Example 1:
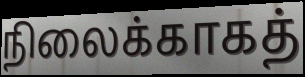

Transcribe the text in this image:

நிலைக்காகத்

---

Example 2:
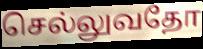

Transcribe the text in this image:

செல்லுவதோ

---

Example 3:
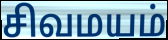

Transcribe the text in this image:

சிவமயம்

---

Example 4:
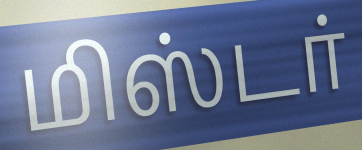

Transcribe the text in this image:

மிஸ்டர்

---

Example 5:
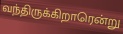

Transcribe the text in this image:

வந்திருக்கிறாரென்று